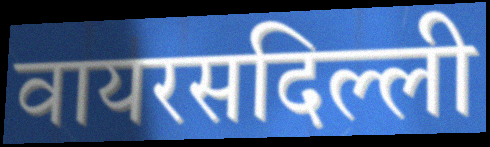
वायरसदिल्ली